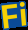
Fi